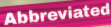
Abbreviated